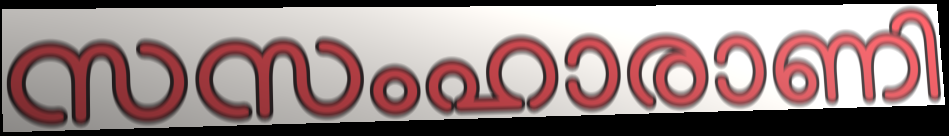
സസംഹാരാണി